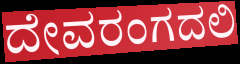
ದೇವರಂಗದಲಿ